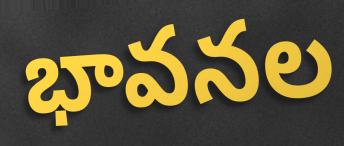
భావనల